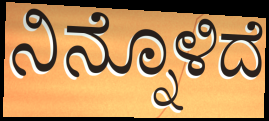
ನಿನ್ನೊಳಿದೆ